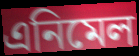
এনিমেল